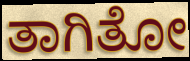
ತಾಗಿತೋ